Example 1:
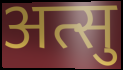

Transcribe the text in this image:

अत्सु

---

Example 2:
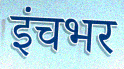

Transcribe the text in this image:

इंचभर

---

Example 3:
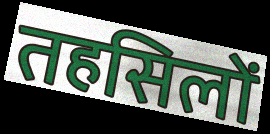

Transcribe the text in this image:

तहसिलों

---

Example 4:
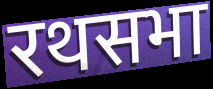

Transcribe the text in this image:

रथसभा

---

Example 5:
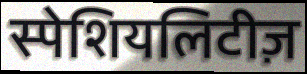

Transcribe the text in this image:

स्पेशियलिटीज़